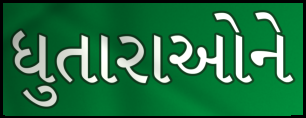
ધુતારાઓને